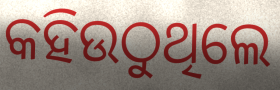
କହିଉଠୁଥିଲେ